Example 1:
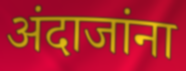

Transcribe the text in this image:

अंदाजांना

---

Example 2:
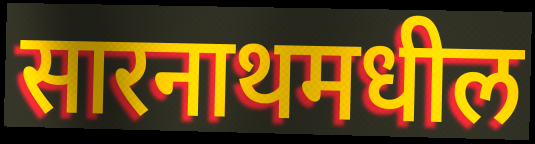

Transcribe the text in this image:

सारनाथमधील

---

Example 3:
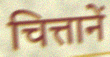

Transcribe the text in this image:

चित्तानें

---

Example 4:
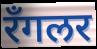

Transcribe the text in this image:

रॅंगलर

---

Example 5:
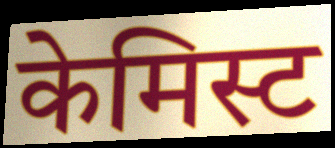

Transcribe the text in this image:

केमिस्ट